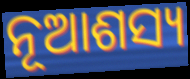
ନୂଆଶସ୍ୟ